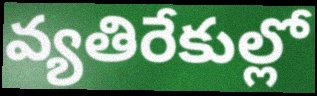
వ్యతిరేకుల్లో